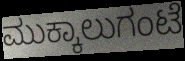
ಮುಕ್ಕಾಲುಗಂಟೆ